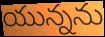
యున్నను